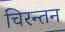
चिरन्तन